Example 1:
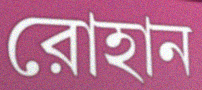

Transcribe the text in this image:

রোহান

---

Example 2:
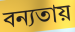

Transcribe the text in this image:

বন্যতায়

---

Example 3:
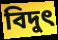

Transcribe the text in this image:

বিদুৎ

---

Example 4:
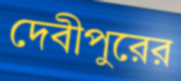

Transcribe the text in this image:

দেবীপুরের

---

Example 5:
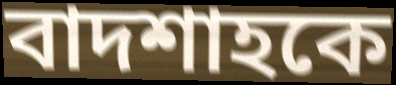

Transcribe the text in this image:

বাদশাহকে